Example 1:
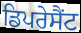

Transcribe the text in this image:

ਡਿਪਰੇਸੈਂਟ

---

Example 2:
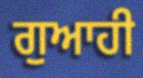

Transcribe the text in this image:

ਗੁਆਹੀ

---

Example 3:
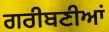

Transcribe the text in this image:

ਗਰੀਬਣੀਆਂ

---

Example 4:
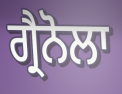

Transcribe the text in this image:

ਗ੍ਰੈਨੋਲਾ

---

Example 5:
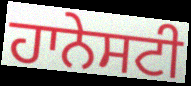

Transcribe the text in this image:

ਹਾਨੇਸਟੀ